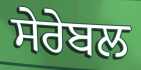
ਸੇਰੇਬਲ